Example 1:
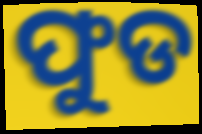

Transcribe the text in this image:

ଫୁଡ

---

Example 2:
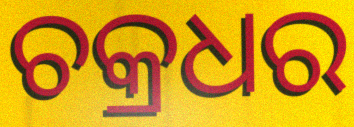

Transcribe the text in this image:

ଚକ୍ରଧର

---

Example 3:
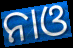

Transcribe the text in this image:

ନାଓ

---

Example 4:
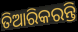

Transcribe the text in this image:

ତିଆରିକରନ୍ତି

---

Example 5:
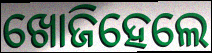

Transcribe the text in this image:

ଖୋଜିହେଲେ